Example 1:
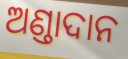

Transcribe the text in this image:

ଅଣ୍ଡାଦାନ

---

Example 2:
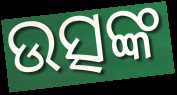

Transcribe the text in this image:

ଉତ୍ସଙ୍କ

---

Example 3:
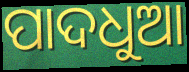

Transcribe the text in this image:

ପାଦଧୁଆ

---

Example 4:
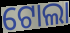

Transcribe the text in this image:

ଟୋଲା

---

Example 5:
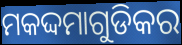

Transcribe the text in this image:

ମକଦ୍ଦମାଗୁଡିକର